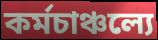
কর্মচাঞ্চল্যে